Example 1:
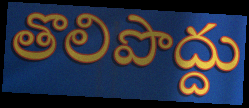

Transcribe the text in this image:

తొలిపొద్దు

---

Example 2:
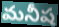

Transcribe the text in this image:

మనీష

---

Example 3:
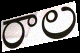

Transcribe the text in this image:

రాల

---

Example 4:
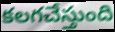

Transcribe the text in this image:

కలగచేస్తుంది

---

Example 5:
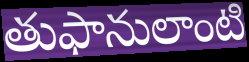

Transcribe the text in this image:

తుఫానులాంటి